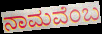
ನಾಮವೆಂಬ